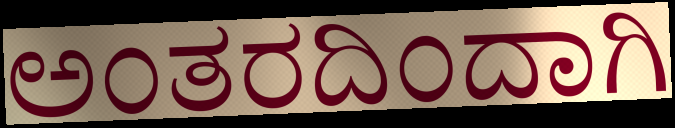
ಅಂತರದಿಂದಾಗಿ